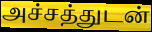
அச்சத்துடன்